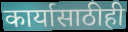
कार्यासाठीही